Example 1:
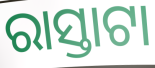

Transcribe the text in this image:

ରାସ୍ତାଟା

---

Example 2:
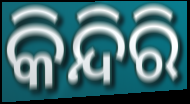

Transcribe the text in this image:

କିନ୍ଦିରି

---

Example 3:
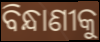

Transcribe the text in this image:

ବିନ୍ଧାଣୀକୁ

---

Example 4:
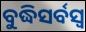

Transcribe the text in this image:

ବୁଦ୍ଧିସର୍ବସ୍ୱ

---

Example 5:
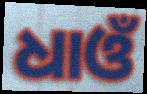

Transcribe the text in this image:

ଧାଓଁ